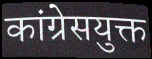
कांग्रेसयुक्त